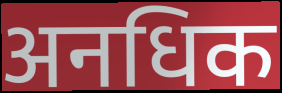
अनधिक